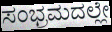
ಸಂಭ್ರಮದಲ್ಲೇ